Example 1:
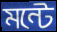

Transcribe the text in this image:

মন্টে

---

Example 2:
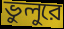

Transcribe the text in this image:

ভুলুরে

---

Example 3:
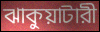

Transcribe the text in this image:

ঝাকুয়াটারী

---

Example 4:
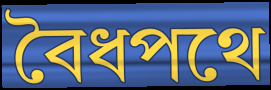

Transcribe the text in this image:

বৈধপথে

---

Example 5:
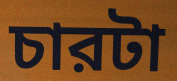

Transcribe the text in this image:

চারটা